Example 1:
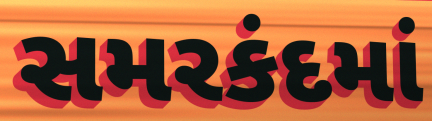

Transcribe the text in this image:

સમરકંદમાં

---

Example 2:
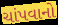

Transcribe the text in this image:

ચાંપવાનો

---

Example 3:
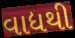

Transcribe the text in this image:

વાદ્યથી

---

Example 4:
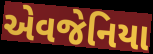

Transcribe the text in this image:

એવજેનિયા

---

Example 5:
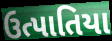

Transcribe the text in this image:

ઉત્પાતિયા